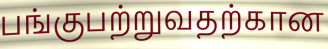
பங்குபற்றுவதற்கான